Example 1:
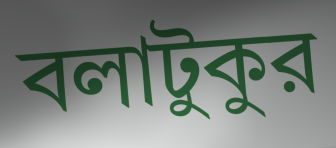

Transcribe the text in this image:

বলাটুকুর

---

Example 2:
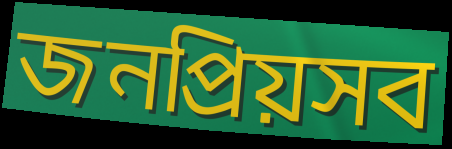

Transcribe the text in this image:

জনপ্রিয়সব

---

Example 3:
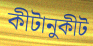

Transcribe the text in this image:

কীটানুকীট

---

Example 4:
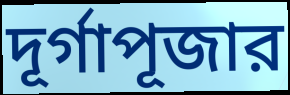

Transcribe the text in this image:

দূর্গাপূজার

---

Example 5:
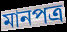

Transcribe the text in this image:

মানপত্র